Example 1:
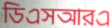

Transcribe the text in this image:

ডিএসআরএ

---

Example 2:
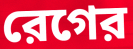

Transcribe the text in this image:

রেগের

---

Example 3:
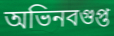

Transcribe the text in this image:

অভিনবগুপ্ত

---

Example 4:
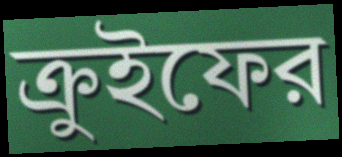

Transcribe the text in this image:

ক্রুইফের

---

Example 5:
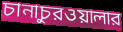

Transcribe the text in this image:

চানাচুরওয়ালার